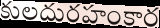
కులదురహంకార